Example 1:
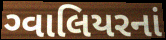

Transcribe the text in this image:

ગ્વાલિયરનાં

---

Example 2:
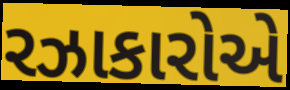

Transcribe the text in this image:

રઝાકારોએ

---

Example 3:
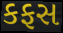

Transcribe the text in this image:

કફસ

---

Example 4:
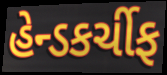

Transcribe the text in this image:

હેન્ડકર્ચીફ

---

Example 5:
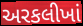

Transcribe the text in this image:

અરકલીખાં